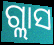
ଗ୍ଲାସ